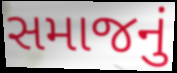
સમાજનું